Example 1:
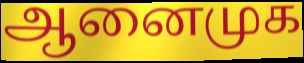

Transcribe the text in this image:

ஆனைமுக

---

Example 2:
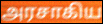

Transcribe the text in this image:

அரசாகிய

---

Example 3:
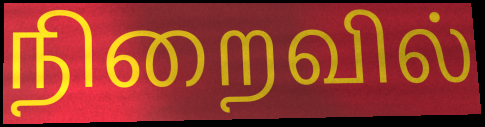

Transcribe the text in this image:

நிறைவில்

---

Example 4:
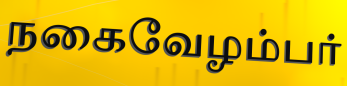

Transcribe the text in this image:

நகைவேழம்பர்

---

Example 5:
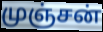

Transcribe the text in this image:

முஞ்சன்